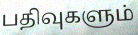
பதிவுகளும்